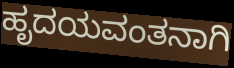
ಹೃದಯವಂತನಾಗಿ